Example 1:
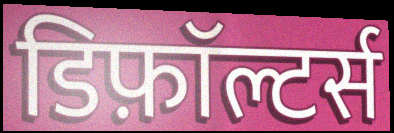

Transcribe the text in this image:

डिफ़ॉल्टर्स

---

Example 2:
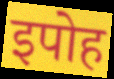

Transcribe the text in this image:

इपोह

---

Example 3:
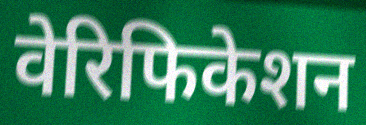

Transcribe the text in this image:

वेरिफिकेशन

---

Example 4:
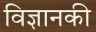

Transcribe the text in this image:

विज्ञानकी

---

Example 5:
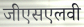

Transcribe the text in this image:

जीएसएलवी